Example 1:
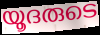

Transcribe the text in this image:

യൂദരുടെ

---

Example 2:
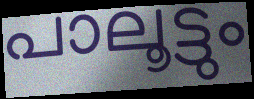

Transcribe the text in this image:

പാലൂട്ടും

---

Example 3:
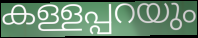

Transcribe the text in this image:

കള്ളപ്പറയും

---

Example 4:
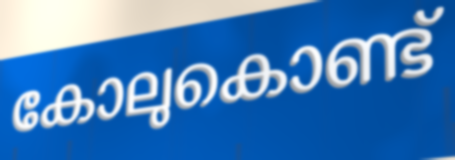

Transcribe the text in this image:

കോലുകൊണ്ട്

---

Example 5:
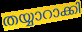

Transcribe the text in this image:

തയ്യാറാക്കി